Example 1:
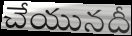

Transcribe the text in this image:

చేయునదీ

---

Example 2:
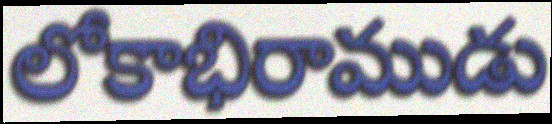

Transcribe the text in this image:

లోకాభిరాముడు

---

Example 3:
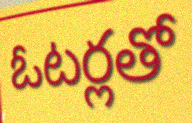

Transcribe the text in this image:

ఓటర్లతో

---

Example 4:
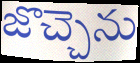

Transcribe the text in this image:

జొచ్చెను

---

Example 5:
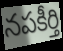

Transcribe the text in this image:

నపకీర్తి